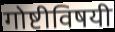
गोष्टीविषयी